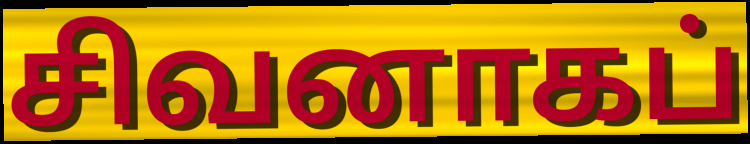
சிவனாகப்